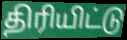
திரியிட்டு